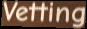
Vetting